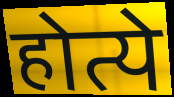
होत्ये